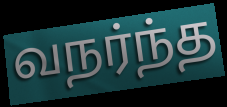
வநர்ந்த